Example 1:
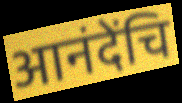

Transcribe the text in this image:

आनंदेंचि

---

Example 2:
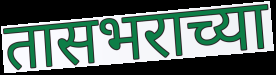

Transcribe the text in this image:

तासभराच्या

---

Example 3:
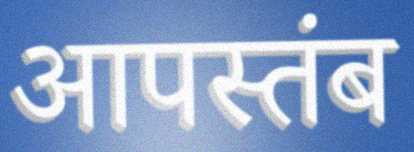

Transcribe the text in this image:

आपस्तंब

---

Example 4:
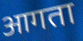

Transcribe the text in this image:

आगता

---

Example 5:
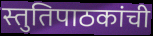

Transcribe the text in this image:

स्तुतिपाठकांची